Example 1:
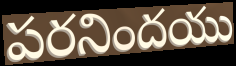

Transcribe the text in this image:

పరనిందయు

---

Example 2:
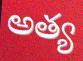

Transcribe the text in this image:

అత్య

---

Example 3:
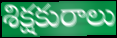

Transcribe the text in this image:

శిక్షకురాలు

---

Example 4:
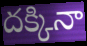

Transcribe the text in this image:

దక్కినా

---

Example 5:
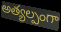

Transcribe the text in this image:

అత్యల్పంగా